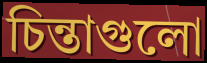
চিন্তাগুলো